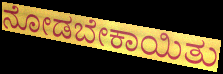
ನೋಡಬೇಕಾಯಿತು